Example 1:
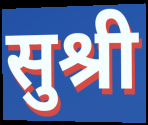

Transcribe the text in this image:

सुश्री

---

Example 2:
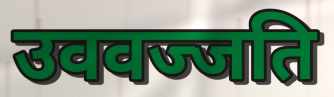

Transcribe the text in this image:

उववज्जति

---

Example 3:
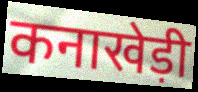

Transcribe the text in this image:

कनाखेड़ी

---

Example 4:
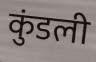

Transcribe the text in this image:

कुंडली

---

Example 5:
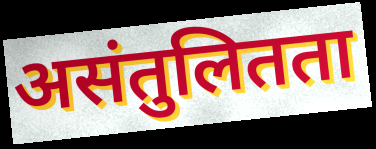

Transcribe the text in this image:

असंतुलितता